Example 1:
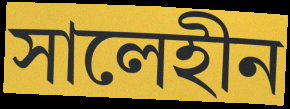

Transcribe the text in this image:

সালেহীন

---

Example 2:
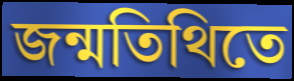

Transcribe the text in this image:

জন্মতিথিতে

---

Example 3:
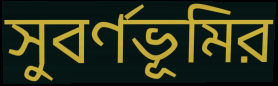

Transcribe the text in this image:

সুবর্ণভূমির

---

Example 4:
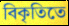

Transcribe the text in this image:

বিকৃতিতে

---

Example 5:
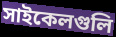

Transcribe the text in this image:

সাইকেলগুলি